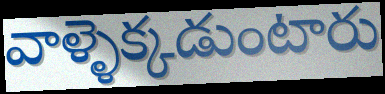
వాళ్ళెక్కడుంటారు